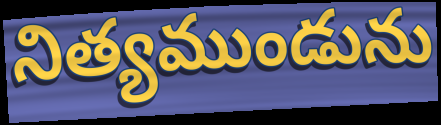
నిత్యముండును